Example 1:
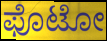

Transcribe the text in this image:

ಫೊಟೋ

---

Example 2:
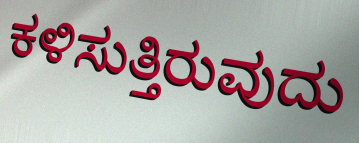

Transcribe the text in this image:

ಕಳಿಸುತ್ತಿರುವುದು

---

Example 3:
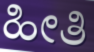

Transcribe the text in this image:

ಹೀತಿ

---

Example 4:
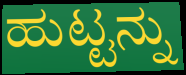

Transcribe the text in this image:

ಹುಟ್ಟನ್ನು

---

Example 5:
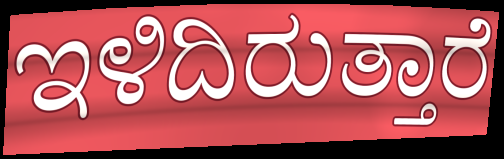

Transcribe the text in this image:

ಇಳಿದಿರುತ್ತಾರೆ